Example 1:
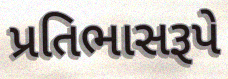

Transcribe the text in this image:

પ્રતિભાસરૂપે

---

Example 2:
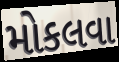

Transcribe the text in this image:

મોકલવા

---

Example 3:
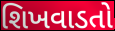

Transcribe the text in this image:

શિખવાડતો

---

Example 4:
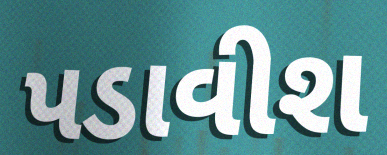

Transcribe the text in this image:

પડાવીશ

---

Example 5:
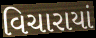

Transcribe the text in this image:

વિચારાયાં